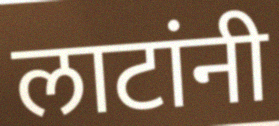
लाटांनी